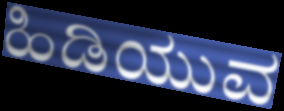
ಹಿಡಿಯುವ